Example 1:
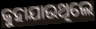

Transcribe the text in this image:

କୁହାଯାଉଥିଲେ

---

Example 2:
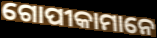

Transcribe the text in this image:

ଗୋପୀକାମାନେ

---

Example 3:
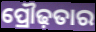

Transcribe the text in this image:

ପ୍ରୌଢ଼ତାର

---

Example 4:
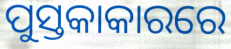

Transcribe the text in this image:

ପୁସ୍ତକାକାରରେ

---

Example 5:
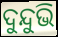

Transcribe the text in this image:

ଦୁନ୍ଦୁଭି